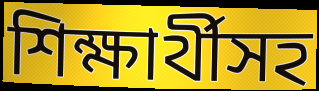
শিক্ষার্থীসহ